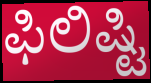
ಫಿಲಿಷ್ಟಿ